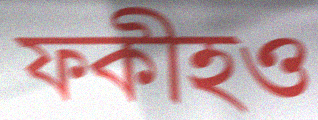
ফকীহও